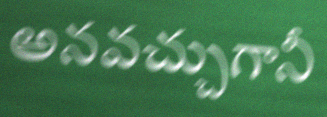
అనవచ్చుగానీ